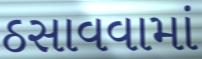
ઠસાવવામાં